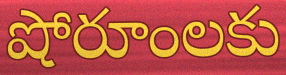
షోరూంలకు